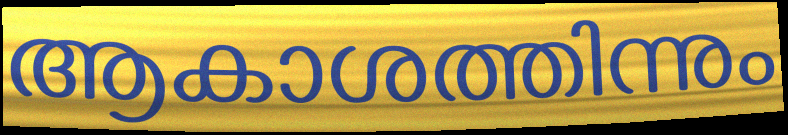
ആകാശത്തിന്നും